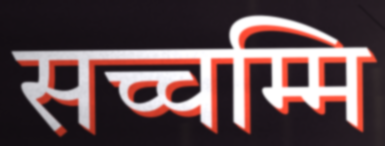
सच्चम्मि